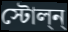
স্টোল্ন্